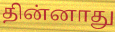
தின்னாது